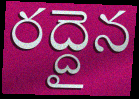
రద్దైన